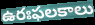
ఉరఃఫలకాలు